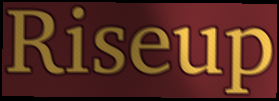
Riseup